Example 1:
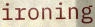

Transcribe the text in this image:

ironing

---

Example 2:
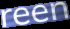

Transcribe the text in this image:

reen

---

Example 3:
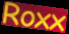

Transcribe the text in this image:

Roxx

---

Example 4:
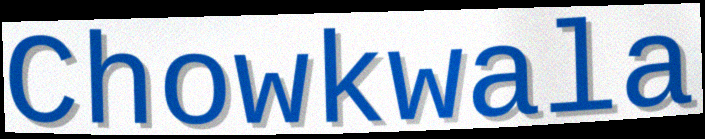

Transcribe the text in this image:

Chowkwala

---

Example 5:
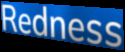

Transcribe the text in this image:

Redness